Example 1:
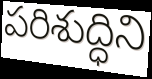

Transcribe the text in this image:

పరిశుద్ధిని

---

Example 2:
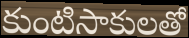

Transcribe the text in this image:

కుంటిసాకులతో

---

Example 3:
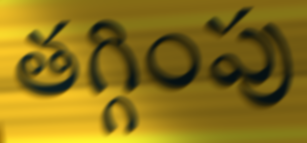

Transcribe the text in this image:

తగ్గింపు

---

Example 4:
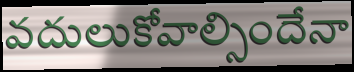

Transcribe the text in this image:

వదులుకోవాల్సిందేనా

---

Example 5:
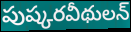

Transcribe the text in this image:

పుష్కరవీథులన్